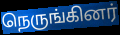
நெருங்கினர்